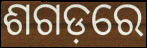
ଶଗଡ଼ରେ